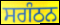
ਸਗੰਠਨ